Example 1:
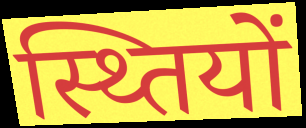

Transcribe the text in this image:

स्थ्तियों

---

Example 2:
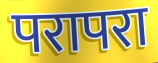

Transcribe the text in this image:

परापरा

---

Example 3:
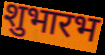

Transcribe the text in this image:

शुभारभ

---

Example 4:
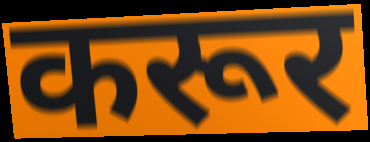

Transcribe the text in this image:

करूर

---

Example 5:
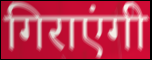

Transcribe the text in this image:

गिराएंगी